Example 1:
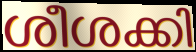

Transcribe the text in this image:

ശീശക്കി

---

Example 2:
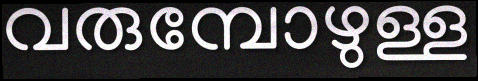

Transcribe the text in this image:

വരുമ്പോഴുള്ള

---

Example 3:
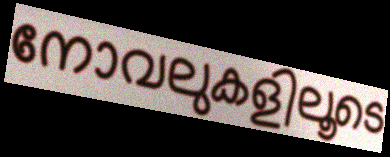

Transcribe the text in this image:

നോവലുകളിലൂടെ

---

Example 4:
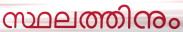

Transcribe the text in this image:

സ്ഥലത്തിനും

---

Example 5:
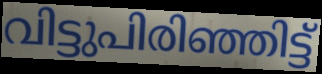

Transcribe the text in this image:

വിട്ടുപിരിഞ്ഞിട്ട്